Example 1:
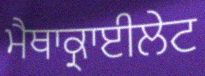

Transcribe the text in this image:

ਮੈਥਾਕ੍ਰਾਈਲੇਟ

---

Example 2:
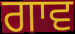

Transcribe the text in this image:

ਗਾਵ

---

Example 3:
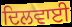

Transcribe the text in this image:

ਦਿਲਵਾਈ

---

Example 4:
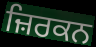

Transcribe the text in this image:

ਜ਼ਿਰਕਨ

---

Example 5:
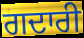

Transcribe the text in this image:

ਗਦਾਰੀ